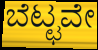
ಬೆಟ್ಟವೇ